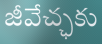
జీవేచ్ఛకు